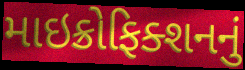
માઇક્રોફિક્શનનું